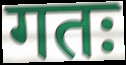
गतः